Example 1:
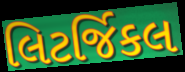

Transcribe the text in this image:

લિટર્જિકલ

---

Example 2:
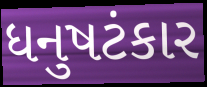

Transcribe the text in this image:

ધનુષટંકાર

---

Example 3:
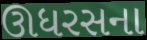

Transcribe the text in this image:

ઊધરસના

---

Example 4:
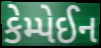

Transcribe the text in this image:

કેમ્પેઈન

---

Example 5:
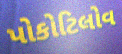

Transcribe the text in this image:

પોકોટિલોવ